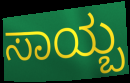
ಸಾಯ್ಬ